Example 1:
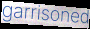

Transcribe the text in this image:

garrisoned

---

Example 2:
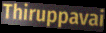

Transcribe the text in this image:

Thiruppavai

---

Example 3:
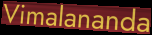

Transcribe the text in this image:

Vimalananda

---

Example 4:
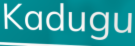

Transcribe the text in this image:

Kadugu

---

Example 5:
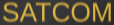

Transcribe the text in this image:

SATCOM